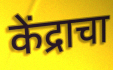
केंद्राचा